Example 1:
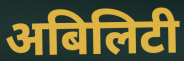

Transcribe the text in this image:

अबिलिटी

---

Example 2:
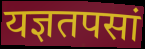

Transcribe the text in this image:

यज्ञतपसां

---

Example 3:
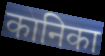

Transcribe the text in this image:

कानिका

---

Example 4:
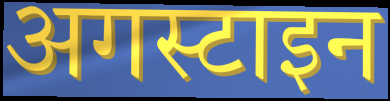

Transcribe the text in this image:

अगस्टाइन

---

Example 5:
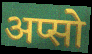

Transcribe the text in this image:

अप्सो